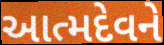
આત્મદેવને